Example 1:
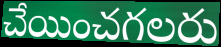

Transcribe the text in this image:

చేయించగలరు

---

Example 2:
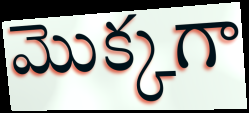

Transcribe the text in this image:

మొక్కగా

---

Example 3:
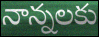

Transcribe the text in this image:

నాన్నలకు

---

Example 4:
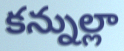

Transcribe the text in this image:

కన్నుల్లా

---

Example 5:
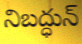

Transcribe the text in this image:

నిబద్ధున్